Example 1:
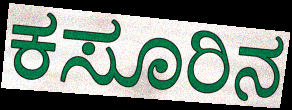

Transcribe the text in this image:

ಕಸೂರಿನ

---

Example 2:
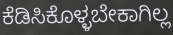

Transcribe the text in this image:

ಕೆಡಿಸಿಕೊಳ್ಳಬೇಕಾಗಿಲ್ಲ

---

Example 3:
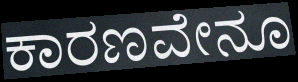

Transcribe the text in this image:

ಕಾರಣವೇನೂ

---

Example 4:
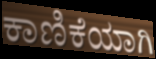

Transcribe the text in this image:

ಕಾಣಿಕೆಯಾಗಿ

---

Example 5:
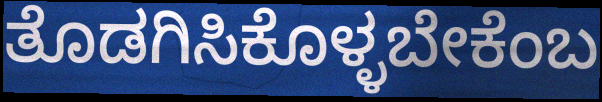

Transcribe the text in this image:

ತೊಡಗಿಸಿಕೊಳ್ಳಬೇಕೆಂಬ